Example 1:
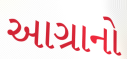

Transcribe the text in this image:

આગ્રાનો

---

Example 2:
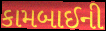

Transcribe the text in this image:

કામબાઈની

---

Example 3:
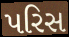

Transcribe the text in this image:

પરિસ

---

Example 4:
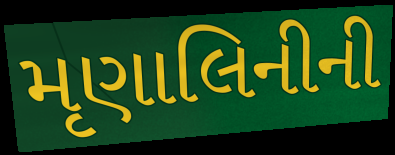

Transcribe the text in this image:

મૃણાલિનીની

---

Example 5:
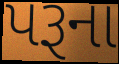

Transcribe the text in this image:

પરૂના